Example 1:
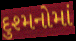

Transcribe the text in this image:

દુશ્મનોમાં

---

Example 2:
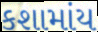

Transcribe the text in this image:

કશામાંય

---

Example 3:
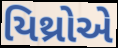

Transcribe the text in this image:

યિથ્રોએ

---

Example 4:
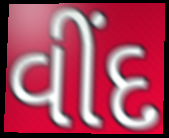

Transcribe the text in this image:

વીંદ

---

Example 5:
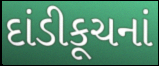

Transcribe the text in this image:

દાંડીકૂચનાં